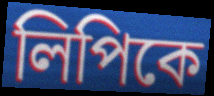
লিপিকে